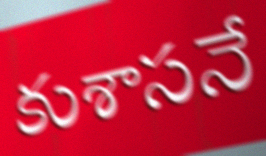
కుశాసనే